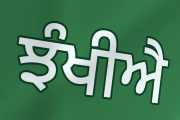
ਝੰਖੀਐ